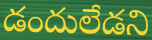
డందులేడని